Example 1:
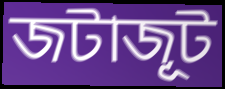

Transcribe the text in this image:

জটাজূট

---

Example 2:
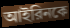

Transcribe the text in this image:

আইরিনকে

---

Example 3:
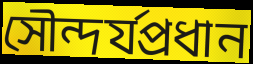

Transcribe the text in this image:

সৌন্দর্যপ্রধান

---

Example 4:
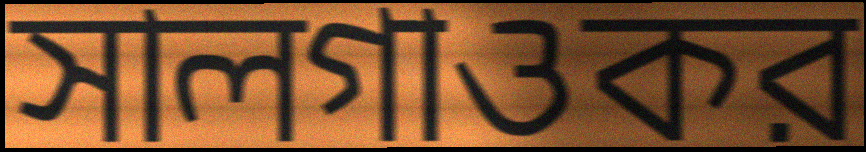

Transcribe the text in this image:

সালগাওকর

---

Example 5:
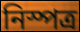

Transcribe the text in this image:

নিস্পত্র